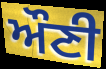
ਔਣੀ